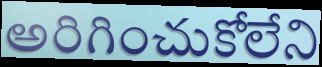
అరిగించుకోలేని